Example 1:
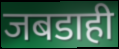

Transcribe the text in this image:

जबडाही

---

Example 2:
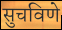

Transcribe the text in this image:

सुचविणे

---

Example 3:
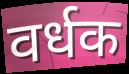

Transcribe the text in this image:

वर्धक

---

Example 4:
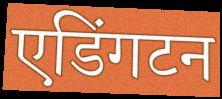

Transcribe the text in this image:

एडिंगटन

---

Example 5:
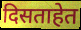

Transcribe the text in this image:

दिसताहेत